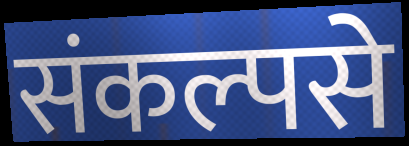
संकल्पसे